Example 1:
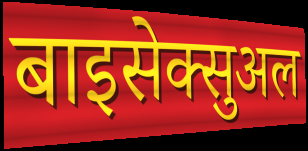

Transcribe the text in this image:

बाइसेक्सुअल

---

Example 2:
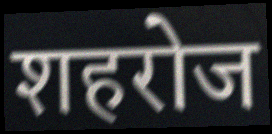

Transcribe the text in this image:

शहरोज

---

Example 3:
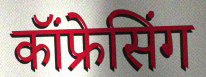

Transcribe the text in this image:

कॉंफ्रेसिंग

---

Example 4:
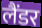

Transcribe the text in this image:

लैंडर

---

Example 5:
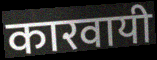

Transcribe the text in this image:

कारवायी